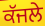
ਕੱਜਲੇ